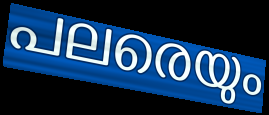
പലരെയും